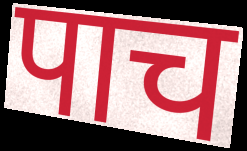
पाच